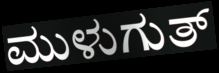
ಮುಳುಗುತ್